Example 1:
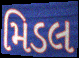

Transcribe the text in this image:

મિડલ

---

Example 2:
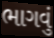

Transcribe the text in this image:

ભાગવું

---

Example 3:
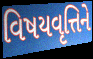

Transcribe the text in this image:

વિષયવૃત્તિને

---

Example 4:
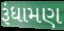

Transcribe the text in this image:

રૂંધામણ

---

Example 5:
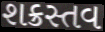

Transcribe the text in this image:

શક્રસ્તવ